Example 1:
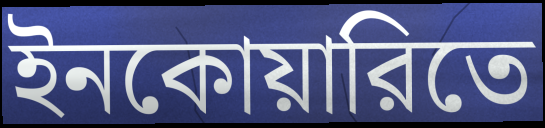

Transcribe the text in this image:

ইনকোয়ারিতে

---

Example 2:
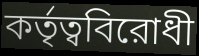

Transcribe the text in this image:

কর্তৃত্ববিরোধী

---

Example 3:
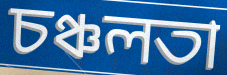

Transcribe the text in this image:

চঞ্চলতা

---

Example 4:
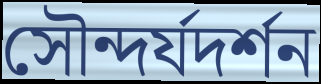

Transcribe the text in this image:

সৌন্দর্যদর্শন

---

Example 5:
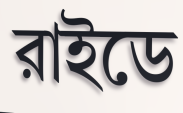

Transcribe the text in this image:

রাইডে